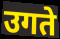
उगते